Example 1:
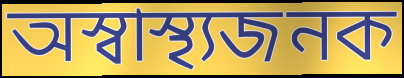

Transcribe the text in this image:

অস্বাস্থ্যজনক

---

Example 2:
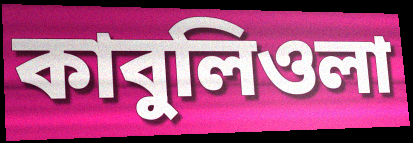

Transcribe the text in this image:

কাবুলিওলা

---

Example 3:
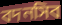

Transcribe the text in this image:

বদনসিব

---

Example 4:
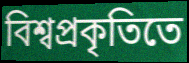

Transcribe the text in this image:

বিশ্বপ্রকৃতিতে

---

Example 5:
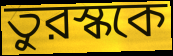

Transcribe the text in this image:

তুরস্ককে